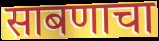
साबणाचा